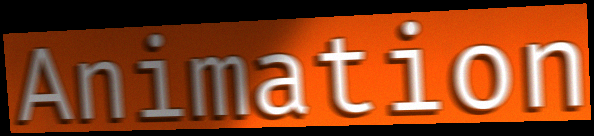
Animation